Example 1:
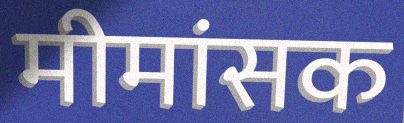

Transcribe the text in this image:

मीमांसक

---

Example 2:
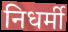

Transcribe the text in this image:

निधर्मी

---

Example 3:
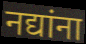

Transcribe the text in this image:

नद्यांना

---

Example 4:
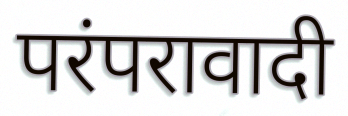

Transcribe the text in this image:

परंपरावादी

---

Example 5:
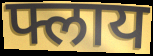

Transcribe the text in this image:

फ्लाय